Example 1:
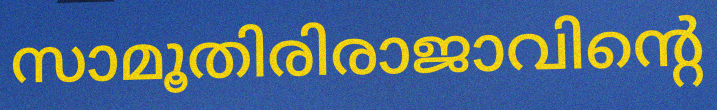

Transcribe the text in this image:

സാമൂതിരിരാജാവിന്റെ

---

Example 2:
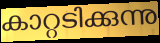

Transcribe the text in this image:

കാറ്റടിക്കുന്നു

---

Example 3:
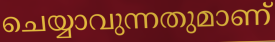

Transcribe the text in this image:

ചെയ്യാവുന്നതുമാണ്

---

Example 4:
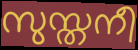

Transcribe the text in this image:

സുസ്തനീ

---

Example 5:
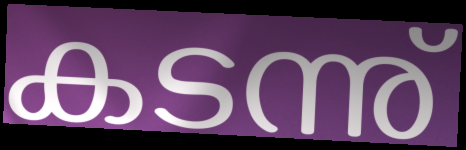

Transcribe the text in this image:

കടന്നു്